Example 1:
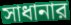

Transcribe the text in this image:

সাধানার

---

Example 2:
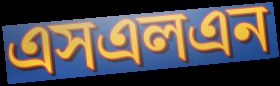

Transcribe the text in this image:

এসএলএন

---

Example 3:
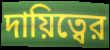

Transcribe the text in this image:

দায়িত্বের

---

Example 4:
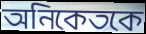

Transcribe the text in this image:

অনিকেতকে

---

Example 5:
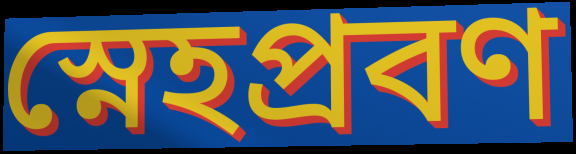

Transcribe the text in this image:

স্নেহপ্রবণ